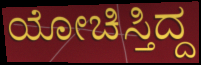
ಯೋಚಿಸ್ತಿದ್ದ